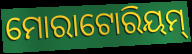
ମୋରାଟୋରିୟମ୍